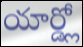
యార్డ్లో